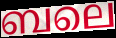
ബലെ